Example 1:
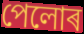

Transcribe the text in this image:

পেলোৰ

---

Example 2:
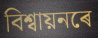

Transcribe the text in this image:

বিশ্বায়নৰে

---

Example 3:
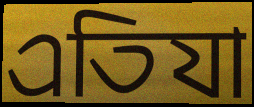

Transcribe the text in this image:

এতিযা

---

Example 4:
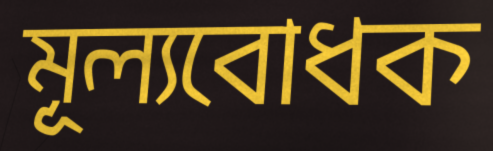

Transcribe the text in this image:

মূল্যবোধক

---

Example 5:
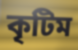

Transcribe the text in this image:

কৃটিম